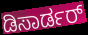
ಡಿಸಾರ್ಡರ್